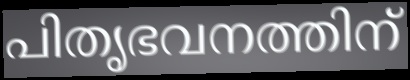
പിതൃഭവനത്തിന്